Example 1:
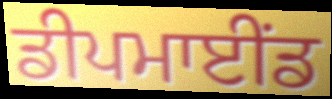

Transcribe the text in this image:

ਡੀਪਮਾਈਂਡ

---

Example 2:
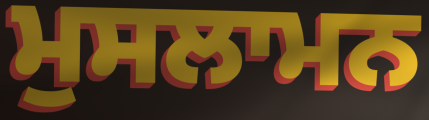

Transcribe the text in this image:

ਮੁਸਲਾਮਨ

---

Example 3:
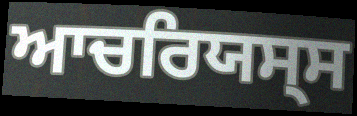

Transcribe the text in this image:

ਆਚਰਿਯਸ੍ਸ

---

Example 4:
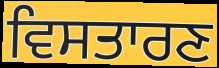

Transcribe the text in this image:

ਵਿਸਤਾਰਣ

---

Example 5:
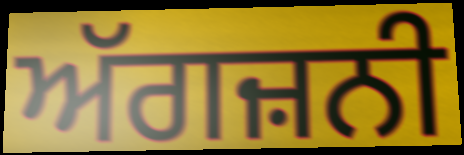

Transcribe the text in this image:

ਅੱਗਜ਼ਨੀ